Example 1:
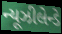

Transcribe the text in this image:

ન્યૂઝીલેન્ડે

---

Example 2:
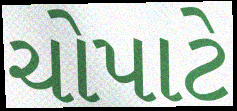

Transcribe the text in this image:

ચોપાટે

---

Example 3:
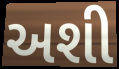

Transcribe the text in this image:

અશી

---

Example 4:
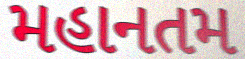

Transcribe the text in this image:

મહાનતમ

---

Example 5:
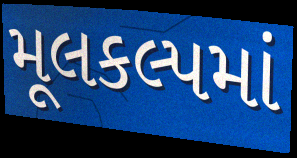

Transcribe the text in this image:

મૂલકલ્પમાં